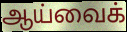
ஆய்வைக்